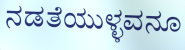
ನಡತೆಯುಳ್ಳವನೂ